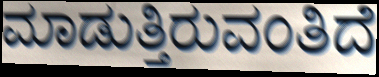
ಮಾಡುತ್ತಿರುವಂತಿದೆ